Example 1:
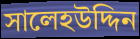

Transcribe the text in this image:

সালেহউদ্দিন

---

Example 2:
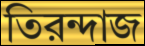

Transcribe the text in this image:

তিরন্দাজ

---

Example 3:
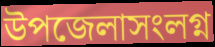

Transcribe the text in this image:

উপজেলাসংলগ্ন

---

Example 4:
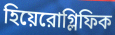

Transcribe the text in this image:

হিয়েরোগ্লিফিক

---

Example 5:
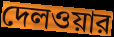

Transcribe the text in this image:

দেলওয়ার